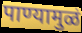
पाण्यामुळं